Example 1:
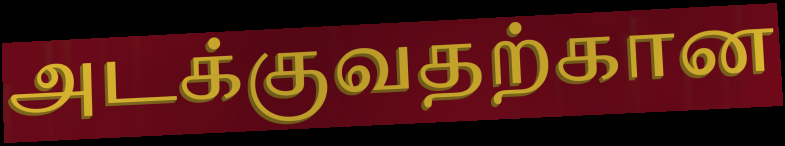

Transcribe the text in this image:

அடக்குவதற்கான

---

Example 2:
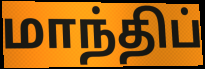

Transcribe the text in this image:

மாந்திப்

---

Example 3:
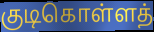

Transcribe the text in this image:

குடிகொள்ளத்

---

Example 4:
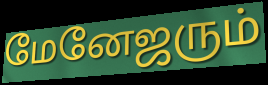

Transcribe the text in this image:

மேனேஜரும்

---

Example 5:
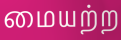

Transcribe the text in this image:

மையற்ற